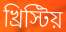
খ্রিস্টিয়